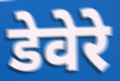
डेवेरे